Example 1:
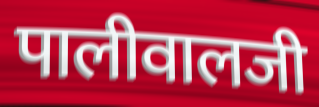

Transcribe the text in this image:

पालीवालजी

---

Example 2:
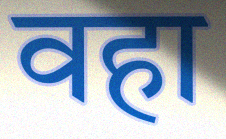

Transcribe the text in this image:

वहा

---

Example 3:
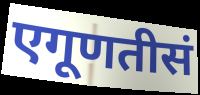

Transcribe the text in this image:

एगूणतीसं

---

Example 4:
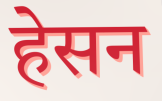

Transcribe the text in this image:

हेसन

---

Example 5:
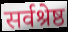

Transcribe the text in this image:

सर्वश्रेष्ठ